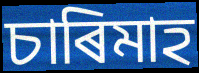
চাৰিমাহ